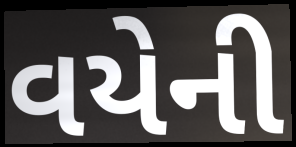
વયેની